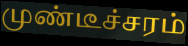
முண்டீச்சரம்